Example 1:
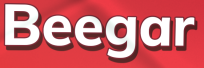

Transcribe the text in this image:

Beegar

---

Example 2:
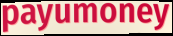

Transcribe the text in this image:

payumoney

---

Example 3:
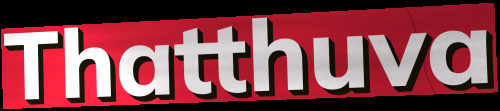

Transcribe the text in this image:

Thatthuva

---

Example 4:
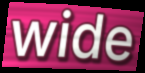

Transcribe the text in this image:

wide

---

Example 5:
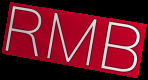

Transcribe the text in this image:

RMB